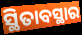
ସ୍ଥିତାବସ୍ଥାର